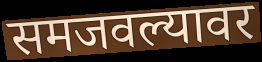
समजवल्यावर